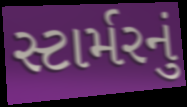
સ્ટાર્મરનું